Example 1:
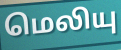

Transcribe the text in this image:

மெலியு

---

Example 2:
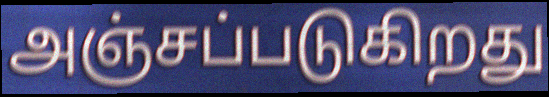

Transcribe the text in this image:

அஞ்சப்படுகிறது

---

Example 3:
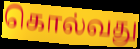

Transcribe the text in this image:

கொல்வது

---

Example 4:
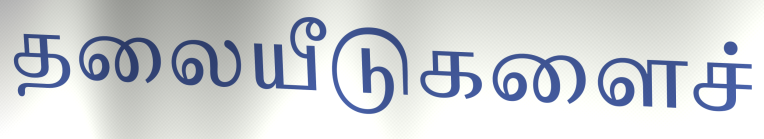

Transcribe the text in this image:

தலையீடுகளைச்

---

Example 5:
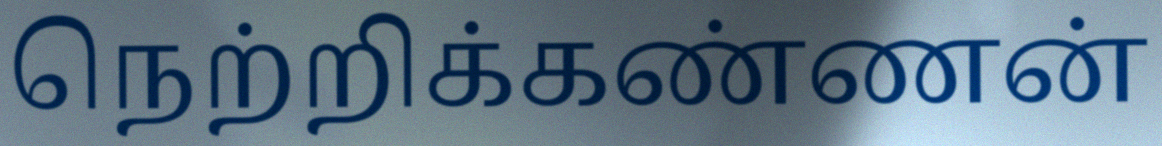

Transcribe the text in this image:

நெற்றிக்கண்ணன்